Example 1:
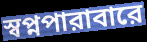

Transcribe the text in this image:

স্বপ্নপারাবারে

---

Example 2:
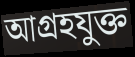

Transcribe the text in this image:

আগ্রহযুক্ত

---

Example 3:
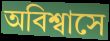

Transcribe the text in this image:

অবিশ্বাসে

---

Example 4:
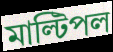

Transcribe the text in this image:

মাল্টিপল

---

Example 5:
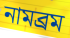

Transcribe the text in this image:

নামব্রম